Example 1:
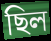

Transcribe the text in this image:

ছিল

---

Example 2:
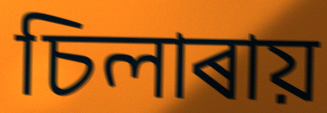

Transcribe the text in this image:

চিলাৰায়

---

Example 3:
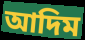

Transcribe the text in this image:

আদিম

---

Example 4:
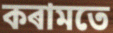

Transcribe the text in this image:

কৰামতে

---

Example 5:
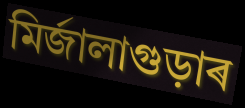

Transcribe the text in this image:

মিৰ্জালাগুড়াৰ